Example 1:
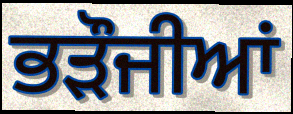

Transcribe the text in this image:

ਭੜੌਜੀਆਂ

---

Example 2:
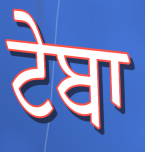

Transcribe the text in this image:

ਟੇਬਾ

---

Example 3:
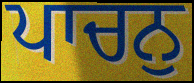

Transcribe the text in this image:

ਪਾਚਨੁ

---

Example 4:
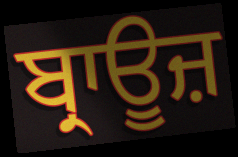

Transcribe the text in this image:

ਬ੍ਰਾਊਜ਼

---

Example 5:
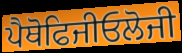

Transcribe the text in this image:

ਪੈਥੋਫਿਜੀਓਲੋਜੀ